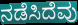
ನಡೆಸಿದೆವು